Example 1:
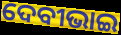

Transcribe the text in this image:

ଦେବୀଭାଇ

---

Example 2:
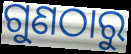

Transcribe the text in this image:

ଗୁଣଠାରୁ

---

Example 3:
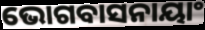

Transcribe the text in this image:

ଭୋଗବାସନାୟାଂ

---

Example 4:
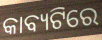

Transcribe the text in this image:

କାବ୍ୟଟିରେ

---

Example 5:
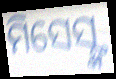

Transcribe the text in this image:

ମିସେସ୍ଙ୍କ